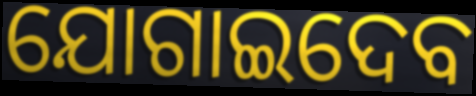
ଯୋଗାଇଦେବ